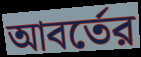
আবর্তের